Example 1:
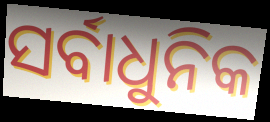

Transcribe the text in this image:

ସର୍ବାଧୁନିକ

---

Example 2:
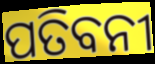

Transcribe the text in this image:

ପତିବନୀ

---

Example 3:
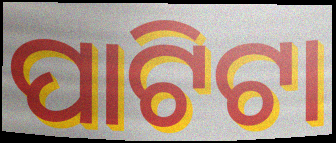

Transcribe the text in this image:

ପାଟିଟା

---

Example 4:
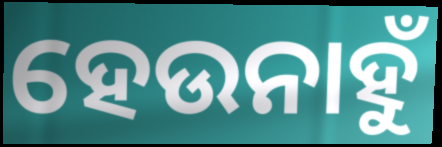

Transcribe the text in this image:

ହେଉନାହୁଁ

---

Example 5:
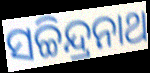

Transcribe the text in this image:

ସଚ୍ଚିନ୍ଦ୍ରନାଥ